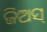
ଜିଅସ୍